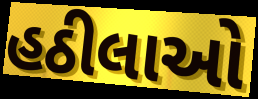
હઠીલાઓ